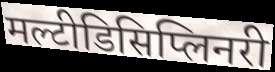
मल्टीडिसिप्लिनरी